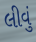
લીવું